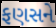
ફણસને